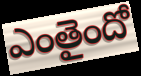
ఎంతైందో